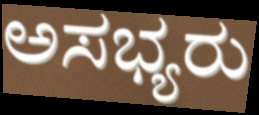
ಅಸಭ್ಯರು